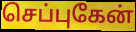
செப்புகேன்